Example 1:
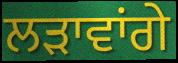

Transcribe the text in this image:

ਲੜਾਵਾਂਗੇ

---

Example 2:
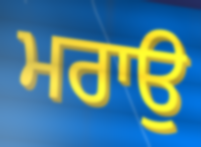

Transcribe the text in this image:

ਮਰਾਉ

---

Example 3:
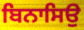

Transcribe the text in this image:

ਬਿਨਾਸਿਉ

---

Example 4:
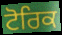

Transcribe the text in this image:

ਟੋਰਿਕ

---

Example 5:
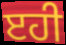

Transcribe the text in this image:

ੲਹੀ